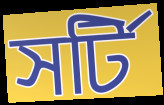
সর্টি